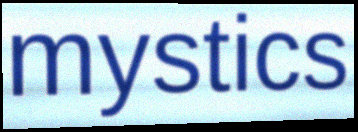
mystics